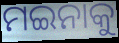
ମଇନାକୁ